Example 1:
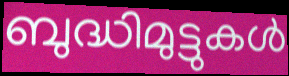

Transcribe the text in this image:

ബുദ്ധിമുട്ടുകൾ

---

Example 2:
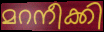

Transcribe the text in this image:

മറനീക്കി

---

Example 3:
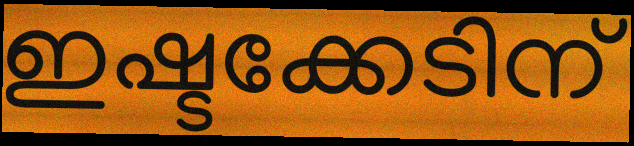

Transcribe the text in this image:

ഇഷ്ടക്കേടിന്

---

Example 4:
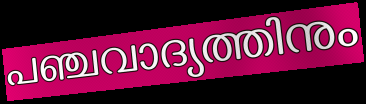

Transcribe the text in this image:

പഞ്ചവാദ്യത്തിനും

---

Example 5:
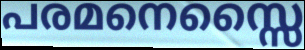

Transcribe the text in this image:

പരമനെസ്സൈ